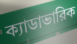
ক্যাডাভারিক